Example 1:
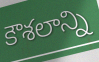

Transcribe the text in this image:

కౌశలాన్ని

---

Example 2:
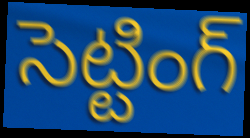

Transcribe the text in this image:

సెట్టింగ్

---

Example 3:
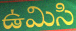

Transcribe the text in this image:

ఉమిసి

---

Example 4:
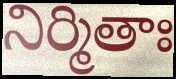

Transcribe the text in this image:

నిర్మితాః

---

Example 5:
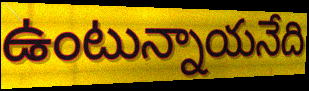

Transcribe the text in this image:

ఉంటున్నాయనేది